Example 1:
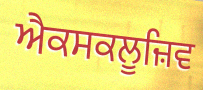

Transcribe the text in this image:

ਐਕਸਕਲੂਜ਼ਿਵ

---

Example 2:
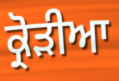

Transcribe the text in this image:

ਕ੍ਰੋੜੀਆ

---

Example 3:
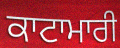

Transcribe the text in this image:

ਕਾਟਾਮਾਰੀ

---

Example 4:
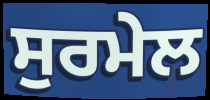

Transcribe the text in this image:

ਸੁਰਮੇਲ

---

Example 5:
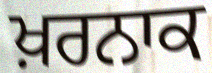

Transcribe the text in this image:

ਖ਼ਰਨਾਕ